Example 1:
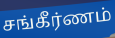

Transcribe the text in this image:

சங்கீர்ணம்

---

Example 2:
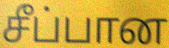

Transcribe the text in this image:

சீப்பான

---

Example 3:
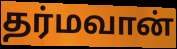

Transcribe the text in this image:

தர்மவான்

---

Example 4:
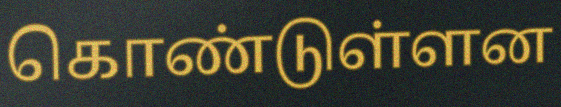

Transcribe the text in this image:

கொண்டுள்ளன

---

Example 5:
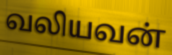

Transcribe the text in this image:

வலியவன்